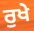
ਰੁਖੇ